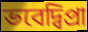
ভবেদ্বিপ্রা